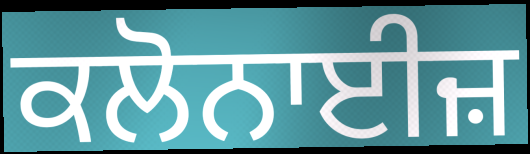
ਕਲੋਨਾਈਜ਼